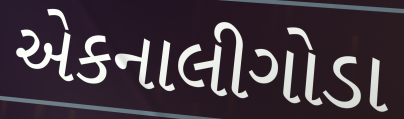
એકનાલીગોડા